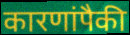
कारणांपैकी